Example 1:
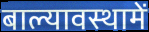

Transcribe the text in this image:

बाल्यावस्थामें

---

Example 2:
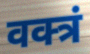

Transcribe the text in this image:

वक्त्रं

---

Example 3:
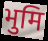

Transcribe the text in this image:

भुमि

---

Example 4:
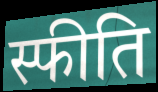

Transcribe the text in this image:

स्‍फीति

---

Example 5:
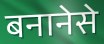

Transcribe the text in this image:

बनानेसे